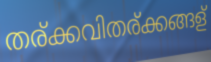
തര്ക്കവിതര്ക്കങ്ങള്